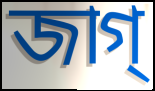
জাগ্